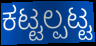
ಕಟ್ಟಲ್ಪಟ್ಟ